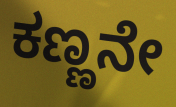
ಕಣ್ಣನೇ